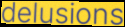
delusions